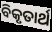
ବିକୃତାର୍ଥ